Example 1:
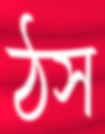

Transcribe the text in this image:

ঠস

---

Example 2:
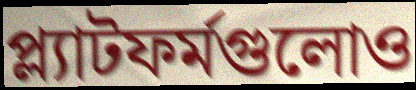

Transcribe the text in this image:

প্ল্যাটফর্মগুলোও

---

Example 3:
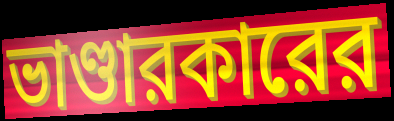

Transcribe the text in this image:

ভাণ্ডারকারের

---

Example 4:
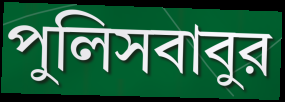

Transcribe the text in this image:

পুলিসবাবুর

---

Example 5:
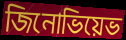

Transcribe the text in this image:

জিনোভিয়েভ